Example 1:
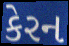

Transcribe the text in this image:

કેરન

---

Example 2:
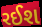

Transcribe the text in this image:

રઈશ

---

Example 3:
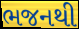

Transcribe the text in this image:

ભજનથી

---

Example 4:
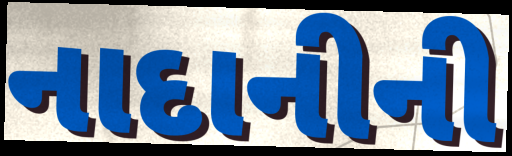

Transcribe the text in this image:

નાદાનીની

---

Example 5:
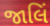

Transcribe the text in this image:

જાલિં